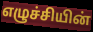
எழுச்சியின்